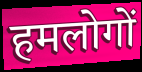
हमलोगों